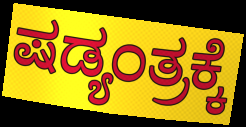
ಷಡ್ಯಂತ್ರಕ್ಕೆ